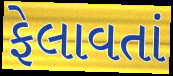
ફેલાવતાં